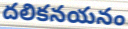
దలికనయనం